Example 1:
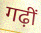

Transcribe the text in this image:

गढ़ीं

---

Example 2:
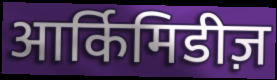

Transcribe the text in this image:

आर्किमिडीज़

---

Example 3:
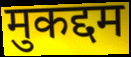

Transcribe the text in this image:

मुकद्दम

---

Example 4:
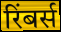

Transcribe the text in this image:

रिंबर्स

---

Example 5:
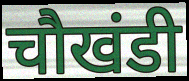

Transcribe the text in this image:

चौखंडी